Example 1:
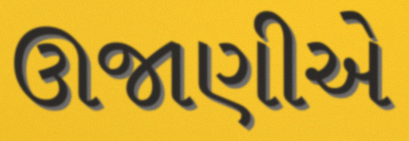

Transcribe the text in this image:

ઊજાણીએ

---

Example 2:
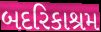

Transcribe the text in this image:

બદરિકાશ્રમ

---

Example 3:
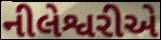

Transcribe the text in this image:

નીલેશ્વરીએ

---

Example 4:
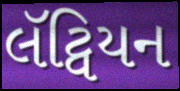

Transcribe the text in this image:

લૅટ્વિયન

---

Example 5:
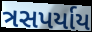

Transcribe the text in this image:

ત્રસપર્યાય